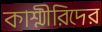
কাশ্মীরিদের